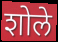
शोले